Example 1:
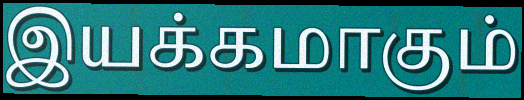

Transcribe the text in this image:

இயக்கமாகும்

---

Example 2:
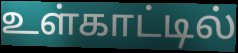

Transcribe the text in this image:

உள்காட்டில்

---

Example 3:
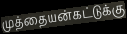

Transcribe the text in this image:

முத்தையன்கட்டுக்கு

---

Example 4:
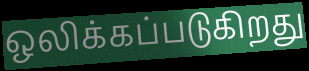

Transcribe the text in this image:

ஒலிக்கப்படுகிறது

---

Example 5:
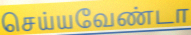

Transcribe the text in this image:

செய்யவேண்டா